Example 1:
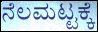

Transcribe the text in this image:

ನೆಲಮಟ್ಟಕ್ಕೆ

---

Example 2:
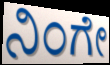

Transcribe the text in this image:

ನಿಂಗೇ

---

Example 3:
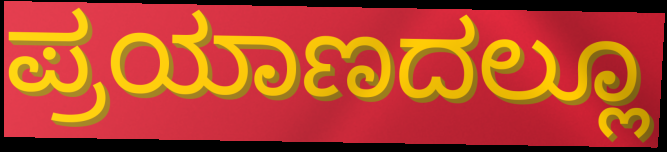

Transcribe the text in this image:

ಪ್ರಯಾಣದಲ್ಲೂ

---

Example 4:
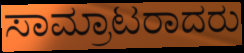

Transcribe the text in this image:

ಸಾಮ್ರಾಟರಾದರು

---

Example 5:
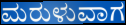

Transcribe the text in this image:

ಮರುಳುವಾಗ